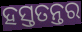
ହସ୍ତତନ୍ତର